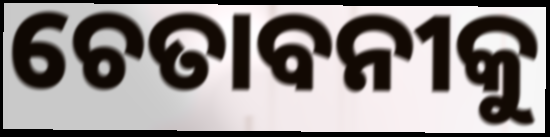
ଚେତାବନୀକୁ